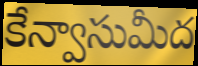
కేన్వాసుమీద